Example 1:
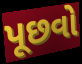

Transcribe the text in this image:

પૂછવો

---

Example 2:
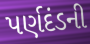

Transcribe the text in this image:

પર્ણદંડની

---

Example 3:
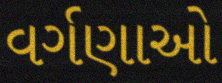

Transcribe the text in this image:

વર્ગણાઓ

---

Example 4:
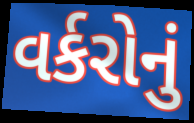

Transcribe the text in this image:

વર્કરોનું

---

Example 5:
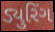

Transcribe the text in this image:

ડ્યુરિંગ